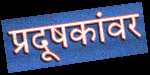
प्रदूषकांवर